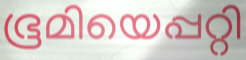
ഭൂമിയെപ്പറ്റി